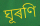
ঘূৰণি